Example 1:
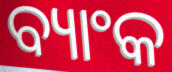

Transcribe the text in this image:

ବ୍ୟାଂକ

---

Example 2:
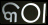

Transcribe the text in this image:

କଠା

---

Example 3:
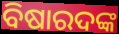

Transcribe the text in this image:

ବିଷାରଦଙ୍କ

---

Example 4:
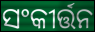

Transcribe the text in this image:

ସଂକୀର୍ତ୍ତନ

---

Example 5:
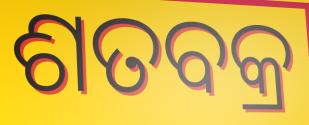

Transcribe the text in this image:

ଶତବକ୍ର